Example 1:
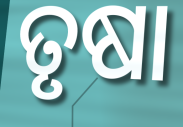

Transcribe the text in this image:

ତୃଷା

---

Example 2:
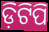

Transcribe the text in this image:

ଡ଼ିଟିପି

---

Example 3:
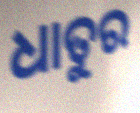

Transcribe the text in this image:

ଧାତୁର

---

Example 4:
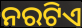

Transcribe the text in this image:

ନରଟିଏ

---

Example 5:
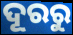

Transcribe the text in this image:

ଦୂରରୁ